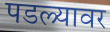
पडल्यावर